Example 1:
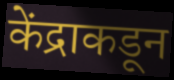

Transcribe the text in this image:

केंद्राकडून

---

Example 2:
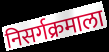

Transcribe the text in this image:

निसर्गक्रमाला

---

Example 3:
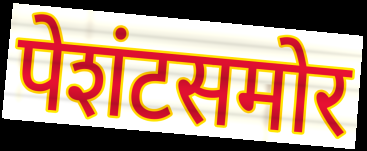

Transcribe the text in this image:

पेशंटसमोर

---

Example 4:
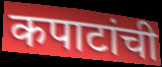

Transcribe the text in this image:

कपाटांची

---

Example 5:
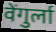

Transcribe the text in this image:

वेंगुर्ला